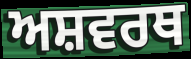
ਅਸ਼ਵਰਥ